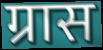
ग्रास